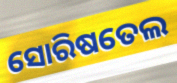
ସୋରିଷତେଲ